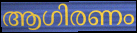
ആഗിരണം